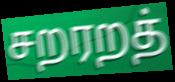
சறரறத்